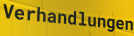
Verhandlungen